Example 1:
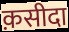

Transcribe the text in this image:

क़सीदा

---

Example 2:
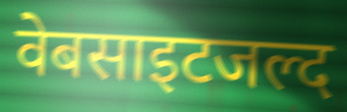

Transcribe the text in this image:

वेबसाइटजल्द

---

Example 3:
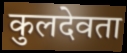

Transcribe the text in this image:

कुलदेवता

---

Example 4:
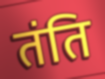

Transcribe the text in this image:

तंति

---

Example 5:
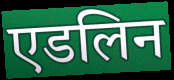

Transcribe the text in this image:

एडलिन